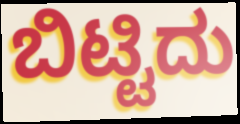
ಬಿಟ್ಟಿದು